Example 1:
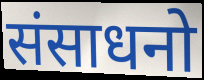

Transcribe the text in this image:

संसाधनो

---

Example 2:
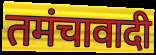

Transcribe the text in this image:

तमंचावादी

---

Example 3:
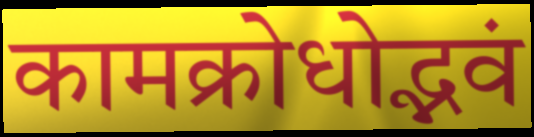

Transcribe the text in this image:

कामक्रोधोद्भवं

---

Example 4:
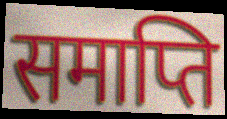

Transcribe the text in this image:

समाप्ति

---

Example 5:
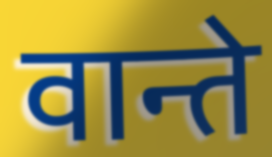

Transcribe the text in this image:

वान्ते